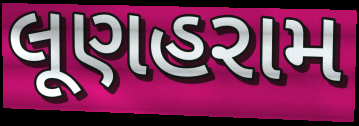
લૂણહરામ